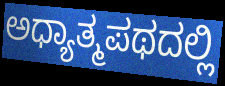
ಅಧ್ಯಾತ್ಮಪಥದಲ್ಲಿ